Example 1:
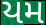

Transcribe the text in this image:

યમ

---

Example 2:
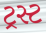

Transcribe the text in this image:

ટ્રસ્ટ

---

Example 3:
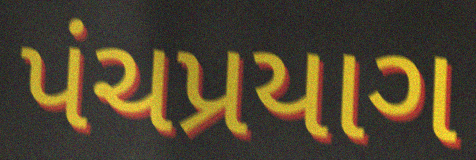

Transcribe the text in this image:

પંચપ્રયાગ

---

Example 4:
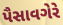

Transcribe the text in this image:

પૈસાવગેરે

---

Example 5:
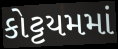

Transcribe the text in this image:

કોટ્ટયમમાં